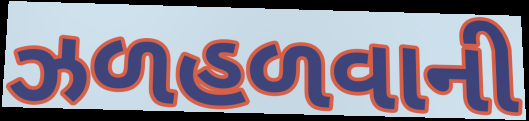
ઝળહળવાની